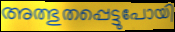
അത്ഭുതപ്പെട്ടുപോയി